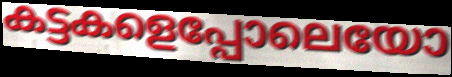
കട്ടകളെപ്പോലെയോ